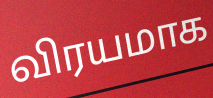
விரயமாக